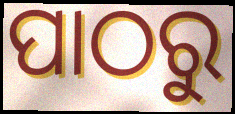
ପାଠରୁ